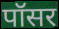
पॉसर